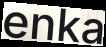
enka